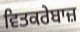
ਵਿਤਕਰੇਬਾਜ਼